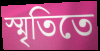
স্মৃতিতে